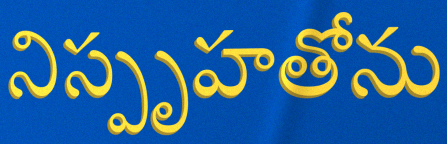
నిస్పృహతోను